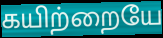
கயிற்றையே